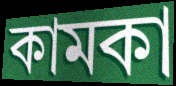
কামকা